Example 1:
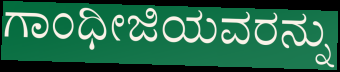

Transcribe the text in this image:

ಗಾಂಧೀಜಿಯವರನ್ನು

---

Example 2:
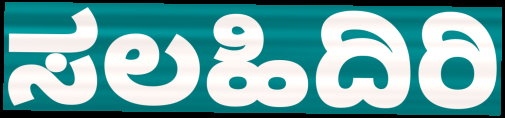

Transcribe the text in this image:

ಸಲಹಿದಿರಿ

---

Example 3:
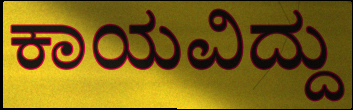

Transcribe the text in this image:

ಕಾಯವಿದ್ದು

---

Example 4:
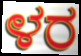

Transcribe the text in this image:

ಳರ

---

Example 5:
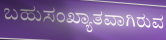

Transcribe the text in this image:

ಬಹುಸಂಖ್ಯಾತವಾಗಿರುವ